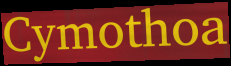
Cymothoa